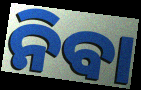
ନିବା